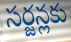
సర్జన్లకు